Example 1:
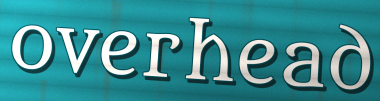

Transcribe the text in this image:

overhead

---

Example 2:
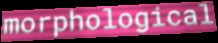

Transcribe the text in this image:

morphological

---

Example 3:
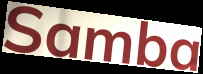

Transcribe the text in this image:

Samba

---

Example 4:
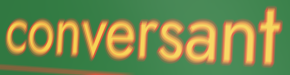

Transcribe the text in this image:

conversant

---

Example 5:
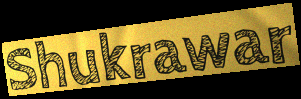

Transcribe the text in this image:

Shukrawar